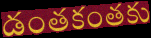
డంతకంతకు